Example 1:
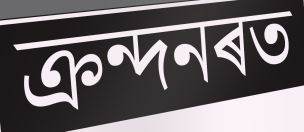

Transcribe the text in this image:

ক্ৰন্দনৰত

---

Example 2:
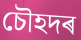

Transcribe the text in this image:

চৌহদৰ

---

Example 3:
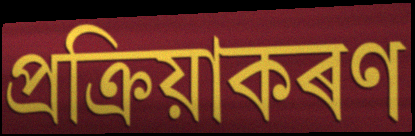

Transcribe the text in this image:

প্ৰক্ৰিয়াকৰণ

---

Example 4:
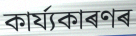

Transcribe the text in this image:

কাৰ্য্যকাৰণৰ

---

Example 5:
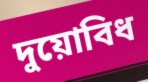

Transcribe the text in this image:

দুয়োবিধ